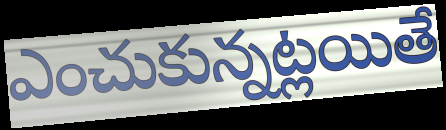
ఎంచుకున్నట్లయితే